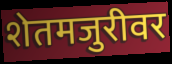
शेतमजुरीवर